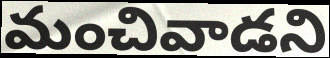
మంచివాడని